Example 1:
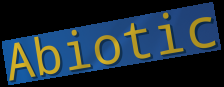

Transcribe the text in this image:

Abiotic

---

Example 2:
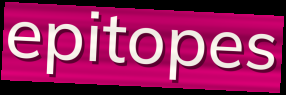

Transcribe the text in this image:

epitopes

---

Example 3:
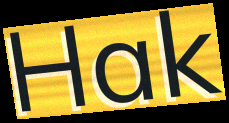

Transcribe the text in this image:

Hak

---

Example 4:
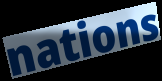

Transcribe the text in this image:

nations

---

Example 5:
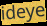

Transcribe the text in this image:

ideye